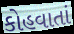
કોહવાતાં